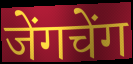
जेंगचेंग